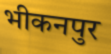
भीकनपुर